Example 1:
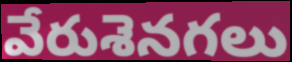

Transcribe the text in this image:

వేరుశెనగలు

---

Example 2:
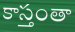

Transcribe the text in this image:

కాస్తంతా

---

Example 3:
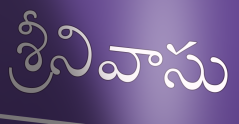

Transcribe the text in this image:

శ్రీనివాసు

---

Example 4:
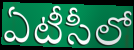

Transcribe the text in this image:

ఏటీసీలో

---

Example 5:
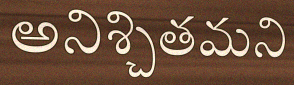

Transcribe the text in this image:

అనిశ్చితమని